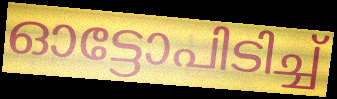
ഓട്ടോപിടിച്ച്